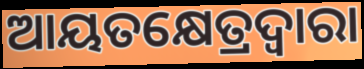
ଆୟତକ୍ଷେତ୍ରଦ୍ଵାରା